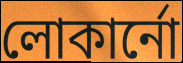
লোকার্নো